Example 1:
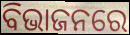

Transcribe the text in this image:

ବିଭାଜନରେ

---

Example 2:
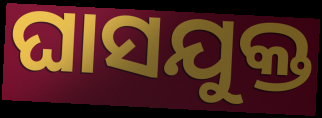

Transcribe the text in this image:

ଘାସଯୁକ୍ତ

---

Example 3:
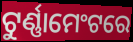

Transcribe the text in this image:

ଟୁର୍ଣ୍ଣାମେଂଟରେ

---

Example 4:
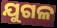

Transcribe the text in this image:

ଯୁଗଳ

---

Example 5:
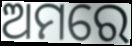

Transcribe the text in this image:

ଅମରେ